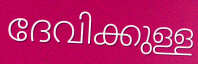
ദേവിക്കുള്ള